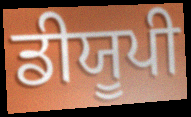
ਡੀਯੂਪੀ